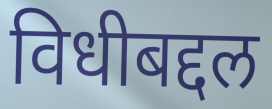
विधीबद्दल